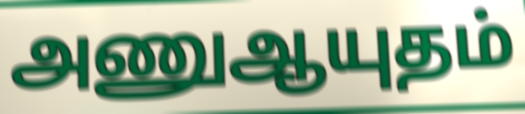
அணுஆயுதம்